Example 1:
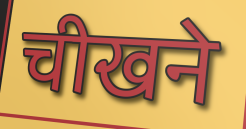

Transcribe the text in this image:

चीखने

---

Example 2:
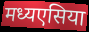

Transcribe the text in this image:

मध्यएसिया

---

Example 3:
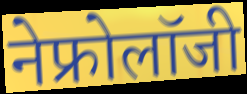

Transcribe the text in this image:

नेफ्रोलॉजी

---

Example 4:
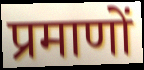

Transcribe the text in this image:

प्रमाणों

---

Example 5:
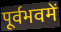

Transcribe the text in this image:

पूर्वभवमें